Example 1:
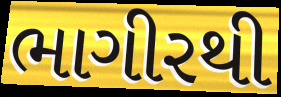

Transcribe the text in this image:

ભાગીરથી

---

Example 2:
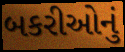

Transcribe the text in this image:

બકરીઓનું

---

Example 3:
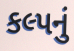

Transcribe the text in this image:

કલ્પનું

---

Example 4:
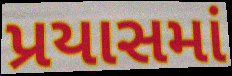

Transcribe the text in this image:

પ્રયાસમાં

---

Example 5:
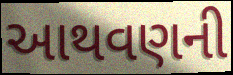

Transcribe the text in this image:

આથવણની